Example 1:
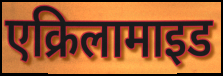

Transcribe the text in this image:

एक्रिलामाइड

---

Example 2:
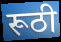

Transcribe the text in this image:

रूठी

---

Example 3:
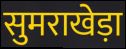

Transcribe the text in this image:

सुमराखेड़ा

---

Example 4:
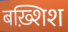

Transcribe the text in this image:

बख़्शिश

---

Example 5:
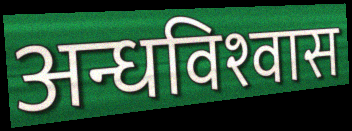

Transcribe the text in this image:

अन्धविश्वास